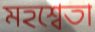
মহশ্বেতা